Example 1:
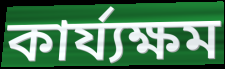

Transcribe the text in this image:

কাৰ্য্যক্ষম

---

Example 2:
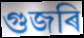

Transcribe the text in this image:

গুজৰি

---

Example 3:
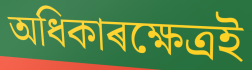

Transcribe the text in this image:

অধিকাৰক্ষেত্ৰই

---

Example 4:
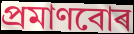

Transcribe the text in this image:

প্ৰমাণবোৰ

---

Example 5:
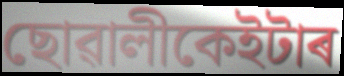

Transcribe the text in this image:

ছোৱালীকেইটাৰ